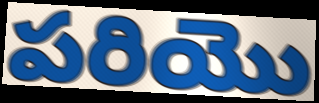
పరియొ